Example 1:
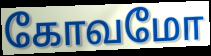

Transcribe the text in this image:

கோவமோ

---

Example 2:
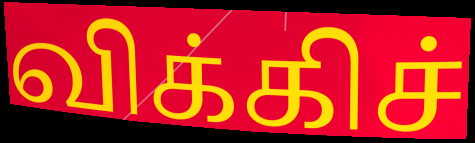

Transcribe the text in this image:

விக்கிச்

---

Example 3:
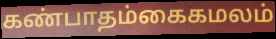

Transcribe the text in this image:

கண்பாதம்கைகமலம்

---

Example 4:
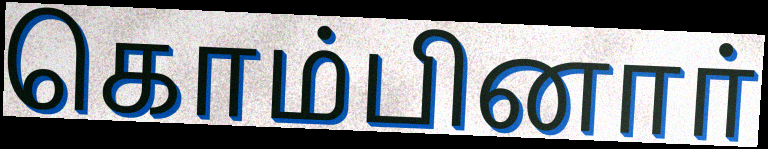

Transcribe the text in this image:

கொம்பினார்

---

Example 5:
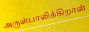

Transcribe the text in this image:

அருள்பாலிக்கிறாள்